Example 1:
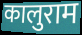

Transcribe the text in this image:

कालुराम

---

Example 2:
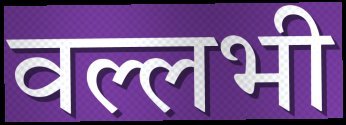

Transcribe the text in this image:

वल्लभी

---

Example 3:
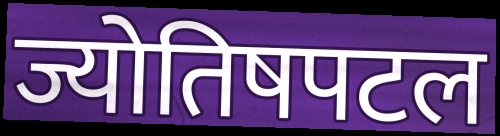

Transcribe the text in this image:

ज्योतिषपटल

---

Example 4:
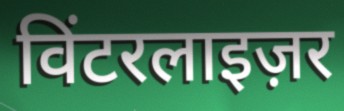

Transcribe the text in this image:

विंटरलाइज़र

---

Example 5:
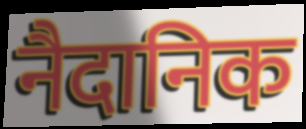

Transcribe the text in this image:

नैदानिक